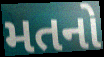
મતનો